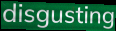
disgusting